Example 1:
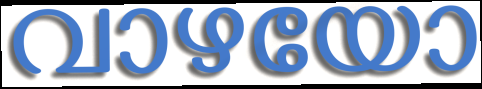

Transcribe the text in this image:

വാഴയോ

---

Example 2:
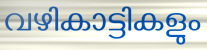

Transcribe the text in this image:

വഴികാട്ടികളും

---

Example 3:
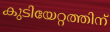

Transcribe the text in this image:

കുടിയേറ്റത്തിന്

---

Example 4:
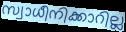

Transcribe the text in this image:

സ്വാധീനിക്കാറില്ല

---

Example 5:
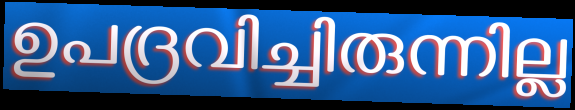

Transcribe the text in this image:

ഉപദ്രവിച്ചിരുന്നില്ല